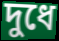
দুধে